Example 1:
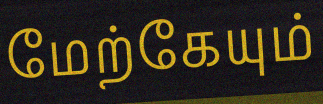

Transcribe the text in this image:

மேற்கேயும்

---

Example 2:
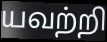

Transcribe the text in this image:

யவற்றி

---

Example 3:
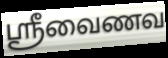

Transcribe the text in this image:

ஸ்ரீவைணவ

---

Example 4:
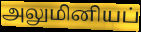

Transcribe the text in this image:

அலுமினியப்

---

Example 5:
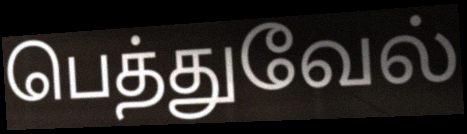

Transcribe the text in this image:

பெத்துவேல்